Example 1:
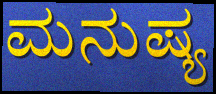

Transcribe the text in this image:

ಮನುಷ್ಯ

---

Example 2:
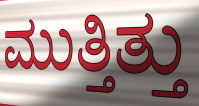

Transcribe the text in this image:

ಮುತ್ತಿತ್ತು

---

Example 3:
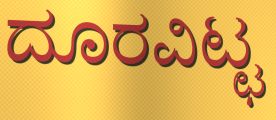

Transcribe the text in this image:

ದೂರವಿಟ್ಟ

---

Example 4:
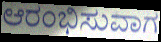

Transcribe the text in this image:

ಆರಂಭಿಸುವಾಗ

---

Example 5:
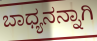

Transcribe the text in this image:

ಬಾಧ್ಯನನ್ನಾಗಿ